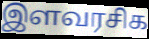
இளவரசிக